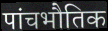
पांचभौतिक